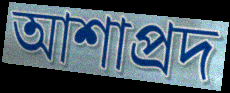
আশাপ্রদ